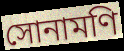
সোনামণি